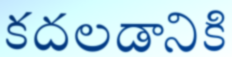
కదలడానికి